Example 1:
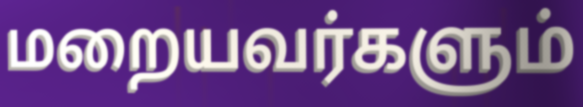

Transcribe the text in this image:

மறையவர்களும்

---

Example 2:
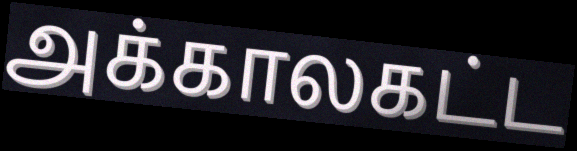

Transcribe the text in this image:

அக்காலகட்ட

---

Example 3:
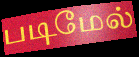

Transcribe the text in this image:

படிமேல்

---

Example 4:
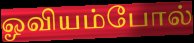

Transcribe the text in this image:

ஓவியம்போல்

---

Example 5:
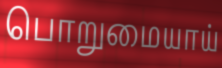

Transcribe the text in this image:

பொறுமையாய்